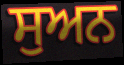
ਸੁਅਨ